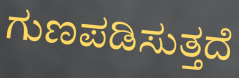
ಗುಣಪಡಿಸುತ್ತದೆ